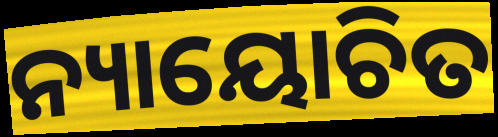
ନ୍ୟାୟୋଚିତ